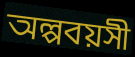
অল্পবয়সী